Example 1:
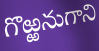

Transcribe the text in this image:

గొఱ్ఱనుగాని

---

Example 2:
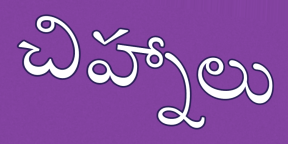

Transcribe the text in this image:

చిహ్నాలు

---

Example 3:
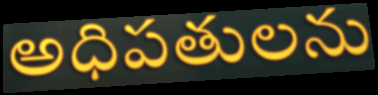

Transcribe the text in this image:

అధిపతులను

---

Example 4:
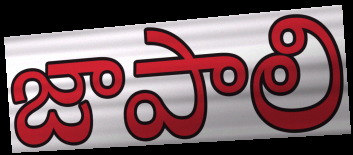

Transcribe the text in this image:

జాపాలి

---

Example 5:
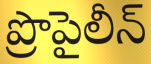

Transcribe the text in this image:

ప్రొపైలీన్